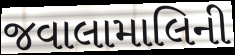
જવાલામાલિની